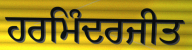
ਹਰਮਿੰਦਰਜੀਤ